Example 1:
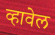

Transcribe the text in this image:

व्हावेल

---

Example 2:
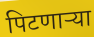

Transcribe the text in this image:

पिटणाऱ्या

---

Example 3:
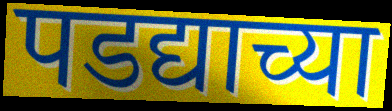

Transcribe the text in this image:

पडद्याच्या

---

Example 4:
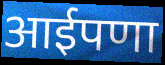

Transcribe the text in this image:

आईपणा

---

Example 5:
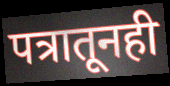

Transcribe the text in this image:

पत्रातूनही